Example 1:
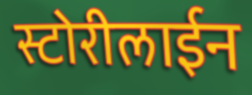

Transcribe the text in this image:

स्टोरीलाईन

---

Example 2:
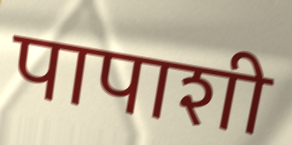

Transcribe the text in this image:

पापाशी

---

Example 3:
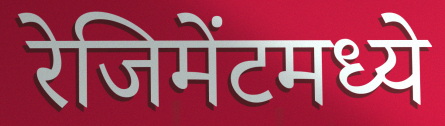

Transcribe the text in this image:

रेजिमेंटमध्ये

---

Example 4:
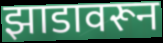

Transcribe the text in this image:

झाडावरून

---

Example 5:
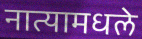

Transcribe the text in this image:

नात्यामधले